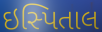
ઇસ્પિતાલ